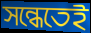
সন্ধেতেই